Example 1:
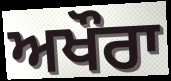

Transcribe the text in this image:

ਅਖੌਰਾ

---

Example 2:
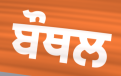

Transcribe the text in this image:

ਬੌਥਲ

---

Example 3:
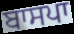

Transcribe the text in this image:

ਬਾਸਪਾ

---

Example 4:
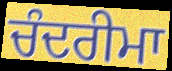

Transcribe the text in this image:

ਚੰਦਰੀਮਾ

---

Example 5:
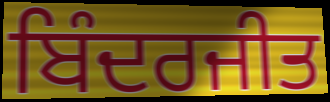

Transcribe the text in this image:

ਬਿੰਦਰਜੀਤ